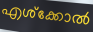
എശ്ക്കോൽ